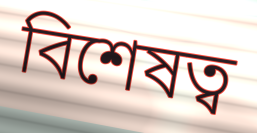
বিশেষত্ব